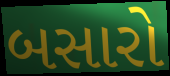
બસારો